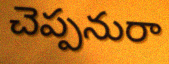
చెప్పనురా